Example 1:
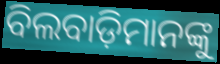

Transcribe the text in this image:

ବିଲବାଡ଼ିମାନଙ୍କୁ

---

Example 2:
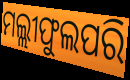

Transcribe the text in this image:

ମଲ୍ଲୀଫୁଲପରି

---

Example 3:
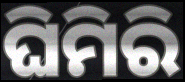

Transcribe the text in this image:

ଘିମିରି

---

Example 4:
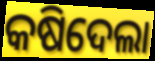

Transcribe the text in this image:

କଷିଦେଲା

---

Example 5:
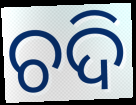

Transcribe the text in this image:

ଚଦି